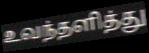
உவந்தளித்து